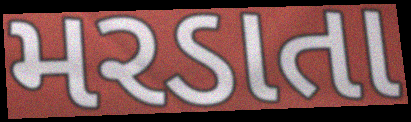
મરડાતા